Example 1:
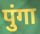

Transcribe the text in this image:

पुंगा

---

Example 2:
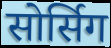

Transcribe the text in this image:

सोर्सिग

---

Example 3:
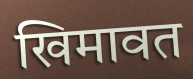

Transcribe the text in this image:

खिमावत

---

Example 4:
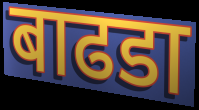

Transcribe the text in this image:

बाढडा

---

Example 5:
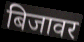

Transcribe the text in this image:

बिजावर